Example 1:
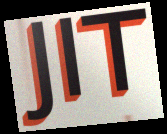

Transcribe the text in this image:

JIT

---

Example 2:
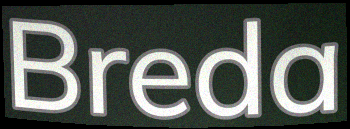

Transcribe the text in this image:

Breda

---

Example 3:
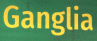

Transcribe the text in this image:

Ganglia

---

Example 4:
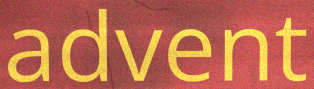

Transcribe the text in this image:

advent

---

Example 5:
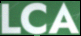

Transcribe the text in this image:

LCA